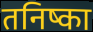
तनिष्का